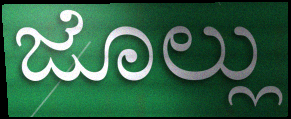
ಜೊಲ್ಲು